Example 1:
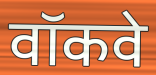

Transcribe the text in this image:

वॉकवे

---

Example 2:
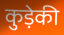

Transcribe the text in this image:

कुड़ेकी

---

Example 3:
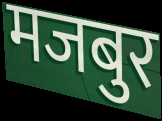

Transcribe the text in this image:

मजबुर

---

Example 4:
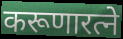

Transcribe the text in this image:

करूणारत्ने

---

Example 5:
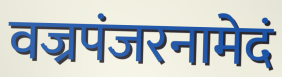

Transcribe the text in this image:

वज्रपंजरनामेदं